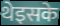
थेइसके